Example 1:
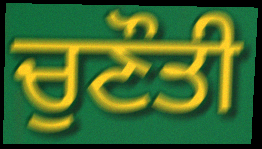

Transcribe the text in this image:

ਚੁਣੌਤੀ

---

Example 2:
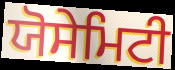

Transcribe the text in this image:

ਯੋਸੇਮਿਟੀ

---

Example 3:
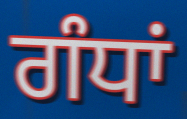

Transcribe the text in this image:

ਗੰਧਾਂ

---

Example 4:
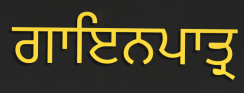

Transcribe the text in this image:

ਗਾਇਨਪਾਤ੍ਰ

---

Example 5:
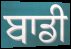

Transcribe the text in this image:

ਬਾਡੀ